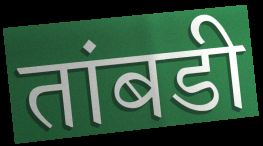
तांबडी